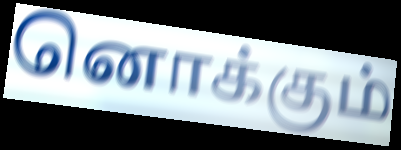
னொக்கும்